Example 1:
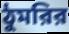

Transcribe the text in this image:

ঠুমরির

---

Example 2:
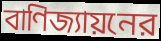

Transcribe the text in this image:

বাণিজ্যায়নের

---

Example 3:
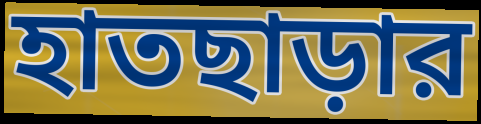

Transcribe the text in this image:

হাতছাড়ার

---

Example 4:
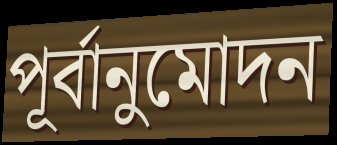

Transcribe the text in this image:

পূর্বানুমোদন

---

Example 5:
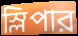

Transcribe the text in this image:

স্লিপার